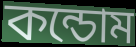
কন্ডোম